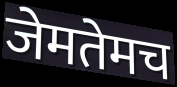
जेमतेमच